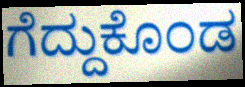
ಗೆದ್ದುಕೊಂಡ